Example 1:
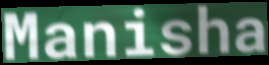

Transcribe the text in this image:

Manisha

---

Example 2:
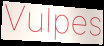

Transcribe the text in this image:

Vulpes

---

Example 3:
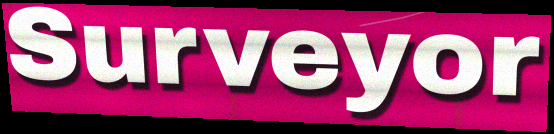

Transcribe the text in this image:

Surveyor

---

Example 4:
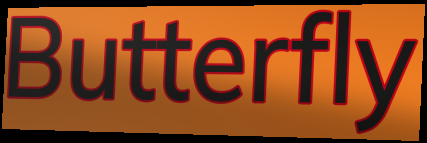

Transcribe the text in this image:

Butterfly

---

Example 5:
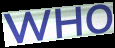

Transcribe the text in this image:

WHO